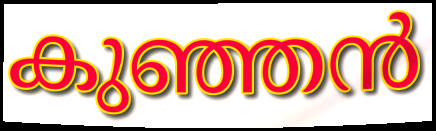
കുഞ്ഞൻ